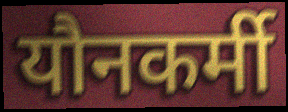
यौनकर्मी